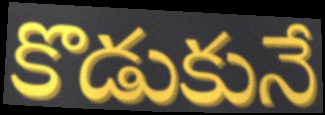
కొడుకునే